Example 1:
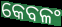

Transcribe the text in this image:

କେବଳଂ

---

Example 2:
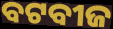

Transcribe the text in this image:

ବଟବୀଜ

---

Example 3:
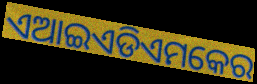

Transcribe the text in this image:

ଏଆଇଏଡିଏମକେର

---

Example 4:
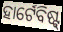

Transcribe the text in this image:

ହାର୍ଟେବିଷ୍ଟ୍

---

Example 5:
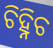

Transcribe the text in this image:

ଚିହ୍ନିଚ